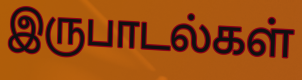
இருபாடல்கள்